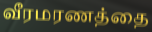
வீரமரணத்தை